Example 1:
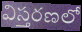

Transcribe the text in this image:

విస్తరణలో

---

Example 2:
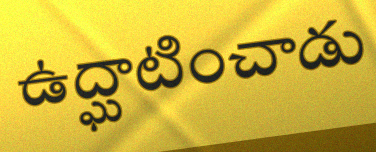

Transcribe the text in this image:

ఉద్ఘాటించాడు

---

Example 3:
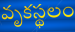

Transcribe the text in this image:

వృకస్థలం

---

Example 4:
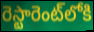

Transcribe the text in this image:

రెస్టారెంట్‌లోకి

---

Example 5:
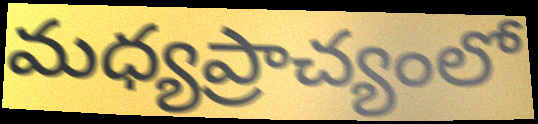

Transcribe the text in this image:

మధ్యప్రాచ్యంలో